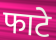
फाटे